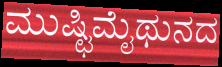
ಮುಷ್ಟಿಮೈಥುನದ